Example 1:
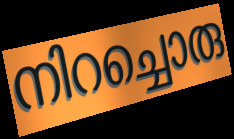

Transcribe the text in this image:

നിറച്ചൊരു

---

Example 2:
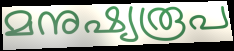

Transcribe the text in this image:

മനുഷ്യരൂപ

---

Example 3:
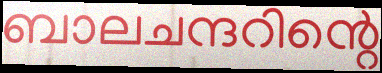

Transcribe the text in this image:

ബാലചന്ദറിന്റെ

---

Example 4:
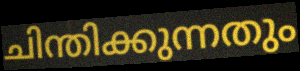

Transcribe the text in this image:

ചിന്തിക്കുന്നതും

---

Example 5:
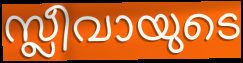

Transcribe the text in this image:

സ്ലീവായുടെ